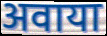
अवाया